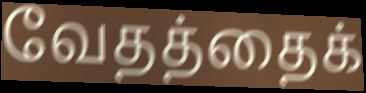
வேதத்தைக்